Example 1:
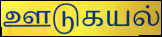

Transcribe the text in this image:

ஊடுகயல்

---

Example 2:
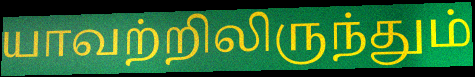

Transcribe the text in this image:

யாவற்றிலிருந்தும்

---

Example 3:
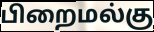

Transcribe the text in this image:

பிறைமல்கு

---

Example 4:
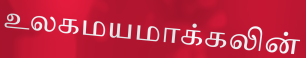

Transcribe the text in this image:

உலகமயமாக்கலின்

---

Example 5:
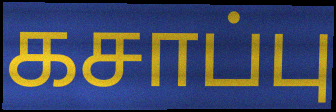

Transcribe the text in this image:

கசாப்பு